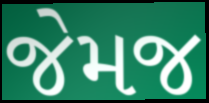
જેમજ